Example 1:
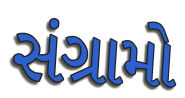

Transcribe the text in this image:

સંગ્રામો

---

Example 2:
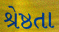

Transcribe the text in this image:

શ્રેષ્ઠતા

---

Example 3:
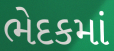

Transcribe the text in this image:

ભેદકમાં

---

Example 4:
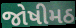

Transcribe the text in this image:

જોષીમઠ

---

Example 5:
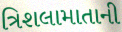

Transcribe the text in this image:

ત્રિશલામાતાની